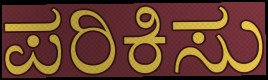
ಪರಿಕಿಸು